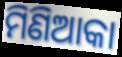
ମିଣିଆକା